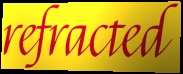
refracted